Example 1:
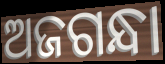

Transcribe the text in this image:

ଅଜଗନ୍ଧା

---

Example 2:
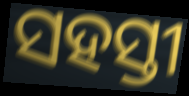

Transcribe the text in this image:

ସହସ୍ତୀ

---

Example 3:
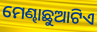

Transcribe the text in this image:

ମେଣ୍ଢାଛୁଆଟିଏ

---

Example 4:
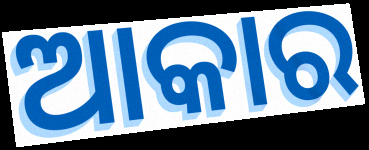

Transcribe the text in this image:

ଆକାର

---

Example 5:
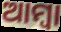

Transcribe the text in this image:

ଆମ୍ବା